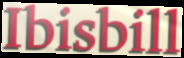
Ibisbill